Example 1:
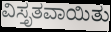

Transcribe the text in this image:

ವಿಸ್ತೃತವಾಯಿತು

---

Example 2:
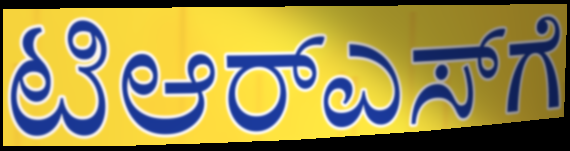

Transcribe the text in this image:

ಟಿಆರ್‌ಎಸ್‌ಗೆ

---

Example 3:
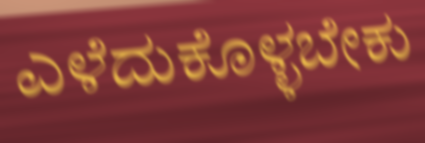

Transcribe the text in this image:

ಎಳೆದುಕೊಳ್ಳಬೇಕು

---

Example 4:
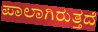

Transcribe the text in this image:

ಪಾಲಾಗಿರುತ್ತದೆ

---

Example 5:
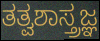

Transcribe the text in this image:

ತತ್ವಶಾಸ್ತ್ರಜ್ಞ